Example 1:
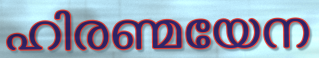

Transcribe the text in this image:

ഹിരണ്മയേന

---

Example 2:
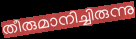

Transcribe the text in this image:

തീരുമാനിച്ചിരുന്നു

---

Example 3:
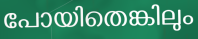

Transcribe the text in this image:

പോയിതെങ്കിലും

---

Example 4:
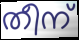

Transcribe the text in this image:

തീന്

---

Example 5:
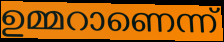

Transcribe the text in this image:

ഉമ്മറാണെന്ന്